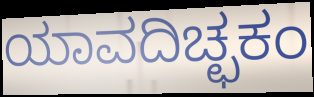
ಯಾವದಿಚ್ಛಕಂ